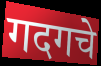
गदगचे